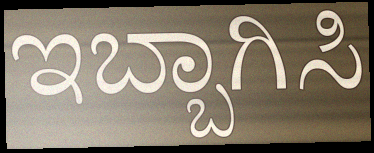
ಇಬ್ಬಾಗಿಸಿ